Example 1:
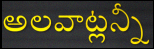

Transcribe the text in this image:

అలవాట్లన్నీ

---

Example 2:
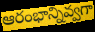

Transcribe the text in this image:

ఆరంభాన్నివ్వగా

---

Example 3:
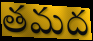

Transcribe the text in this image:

తమద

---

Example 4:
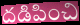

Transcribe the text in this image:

దడిపించి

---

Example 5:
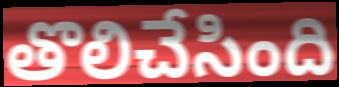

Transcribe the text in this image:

తొలిచేసింది